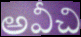
అవీచి